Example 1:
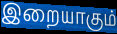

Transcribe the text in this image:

இறையாகும்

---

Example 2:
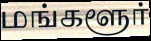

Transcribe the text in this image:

மங்களூர்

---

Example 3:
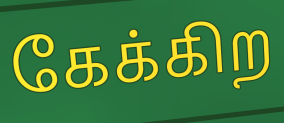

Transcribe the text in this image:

கேக்கிற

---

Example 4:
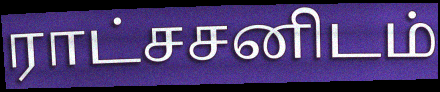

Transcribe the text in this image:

ராட்சசனிடம்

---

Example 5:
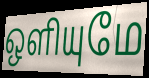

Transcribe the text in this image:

ஒளியுமே